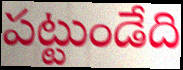
పట్టుండేది